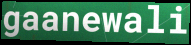
gaanewali